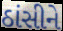
ઠાંસીને